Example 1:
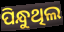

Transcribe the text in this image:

ପିନ୍ଧୁଥିଲ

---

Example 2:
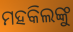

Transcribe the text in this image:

ମହକିଲଙ୍କୁ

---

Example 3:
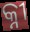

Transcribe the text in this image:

କ୍ନୀ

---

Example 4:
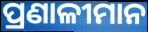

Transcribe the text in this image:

ପ୍ରଣାଳୀମାନ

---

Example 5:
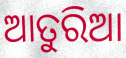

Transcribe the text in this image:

ଆତୁରିଆ